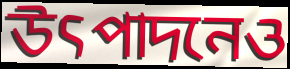
উৎপাদনেও